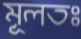
মূলতঃ